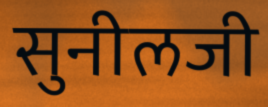
सुनीलजी